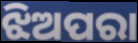
ଝିଅପରା